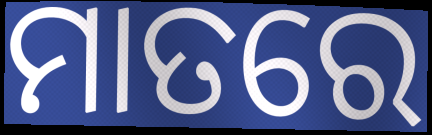
ମାତରେ